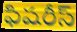
ఫిషరీస్